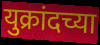
युक्रांदच्या